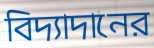
বিদ্যাদানের